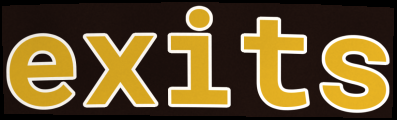
exits